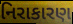
નિરાકારણ